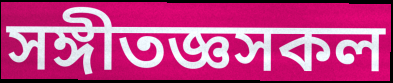
সঙ্গীতজ্ঞসকল